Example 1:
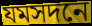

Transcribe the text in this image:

যমসদনে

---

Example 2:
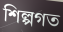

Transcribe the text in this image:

শিল্পগত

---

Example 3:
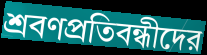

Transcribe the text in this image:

শ্রবণপ্রতিবন্ধীদের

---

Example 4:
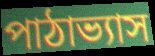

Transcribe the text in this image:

পাঠাভ্যাস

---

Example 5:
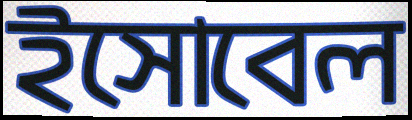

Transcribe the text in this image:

ইসোবেল